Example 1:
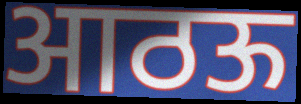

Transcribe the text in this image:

आठऊ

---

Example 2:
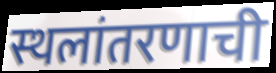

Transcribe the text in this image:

स्थलांतरणाची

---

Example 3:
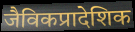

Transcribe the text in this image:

जैविकप्रादेशिक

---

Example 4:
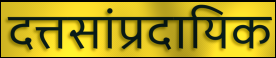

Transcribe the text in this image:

दत्तसांप्रदायिक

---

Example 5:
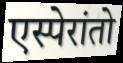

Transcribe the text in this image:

एस्पेरांतो